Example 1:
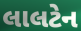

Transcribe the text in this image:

લાલટેન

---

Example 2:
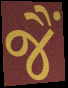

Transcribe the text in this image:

જૈં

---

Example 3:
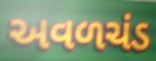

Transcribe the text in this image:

અવળચંડ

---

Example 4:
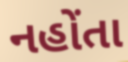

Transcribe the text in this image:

નહોંતા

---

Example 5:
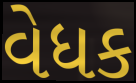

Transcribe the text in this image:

વેધક